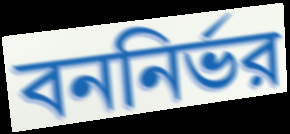
বননির্ভর